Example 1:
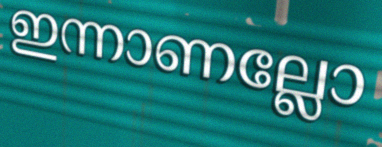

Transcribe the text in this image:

ഇന്നാണല്ലോ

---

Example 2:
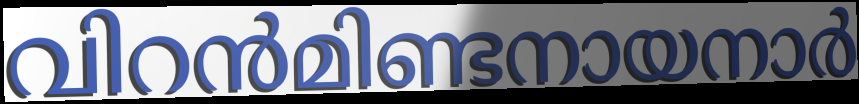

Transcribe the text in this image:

വിറൻമിണ്ടനായനാർ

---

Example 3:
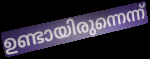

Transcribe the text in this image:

ഉണ്ടായിരുന്നെന്ന്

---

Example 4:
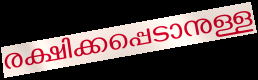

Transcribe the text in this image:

രക്ഷിക്കപ്പെടാനുള്ള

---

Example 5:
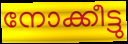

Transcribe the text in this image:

നോക്കീട്ടു